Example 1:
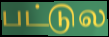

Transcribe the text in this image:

பட்டுல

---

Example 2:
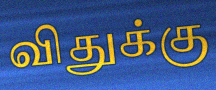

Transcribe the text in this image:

விதுக்கு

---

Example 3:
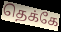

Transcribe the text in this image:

தெக்கே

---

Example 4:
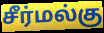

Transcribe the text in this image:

சீர்மல்கு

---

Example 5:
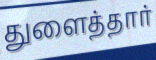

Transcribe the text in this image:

துளைத்தார்